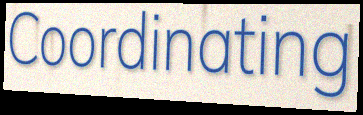
Coordinating